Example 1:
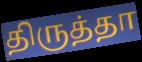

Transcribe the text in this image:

திருத்தா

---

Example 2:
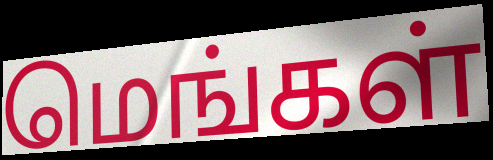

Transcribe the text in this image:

மெங்கள்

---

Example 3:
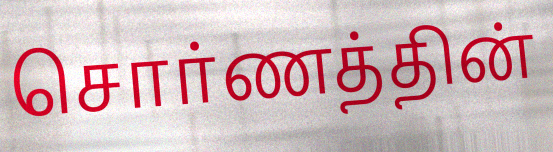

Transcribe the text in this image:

சொர்ணத்தின்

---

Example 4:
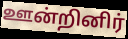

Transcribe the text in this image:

ஊன்றினிர்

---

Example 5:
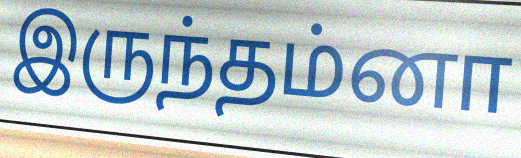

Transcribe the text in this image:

இருந்தம்னா